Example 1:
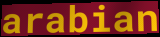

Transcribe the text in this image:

arabian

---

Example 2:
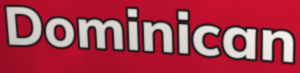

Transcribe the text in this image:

Dominican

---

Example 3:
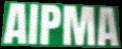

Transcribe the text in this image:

AIPMA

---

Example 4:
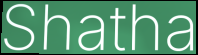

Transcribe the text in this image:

Shatha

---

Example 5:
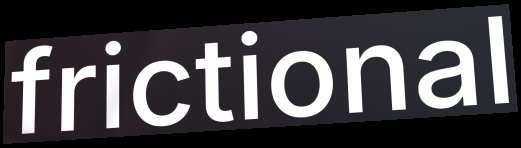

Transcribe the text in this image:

frictional